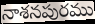
నాశనపురము